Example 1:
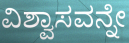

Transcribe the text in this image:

ವಿಶ್ವಾಸವನ್ನೇ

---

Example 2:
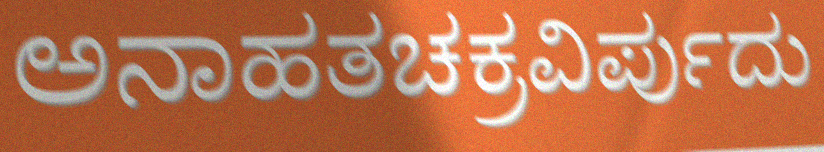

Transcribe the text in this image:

ಅನಾಹತಚಕ್ರವಿರ್ಪುದು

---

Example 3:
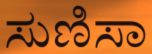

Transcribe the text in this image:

ಸುಣಿಸಾ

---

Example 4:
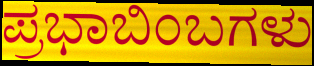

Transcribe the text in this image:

ಪ್ರಭಾಬಿಂಬಗಳು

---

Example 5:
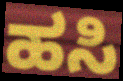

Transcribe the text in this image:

ಹಸಿ